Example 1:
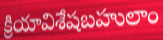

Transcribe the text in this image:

క్రియావిశేషబహులాం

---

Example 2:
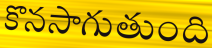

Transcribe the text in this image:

కొనసాగుతుంది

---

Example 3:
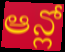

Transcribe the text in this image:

ఆన్లో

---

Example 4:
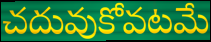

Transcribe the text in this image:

చదువుకోవటమే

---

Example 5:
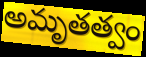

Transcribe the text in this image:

అమృతత్వం